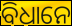
ବିଧାନେ